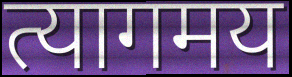
त्यागमय